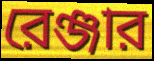
রেঞ্জার